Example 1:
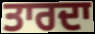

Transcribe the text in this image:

ਤਾਰਦਾ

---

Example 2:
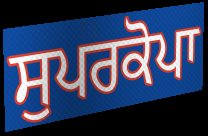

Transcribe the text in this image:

ਸੁਪਰਕੋਪਾ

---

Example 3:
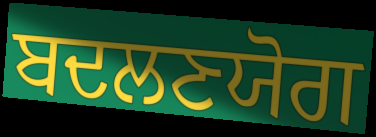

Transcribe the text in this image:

ਬਦਲਣਯੋਗ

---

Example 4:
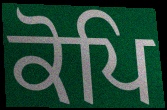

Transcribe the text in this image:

ਕੋਪਿ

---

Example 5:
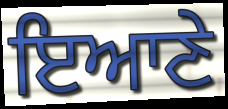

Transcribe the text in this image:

ਇਆਣੇ